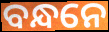
ବନ୍ଧନେ